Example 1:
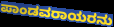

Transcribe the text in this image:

ಪಾಂಡವರಾಯರನು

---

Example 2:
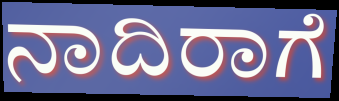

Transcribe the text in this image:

ನಾದಿರಾಗೆ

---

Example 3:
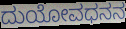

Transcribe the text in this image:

ದುಯೋವಧನನ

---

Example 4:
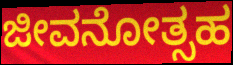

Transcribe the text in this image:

ಜೀವನೋತ್ಸಹ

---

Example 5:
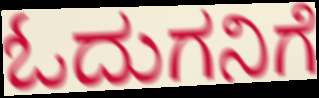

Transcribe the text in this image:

ಓದುಗನಿಗೆ